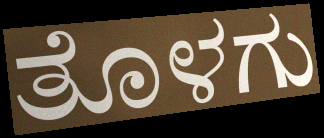
ತೊಳಗು